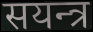
सयन्त्र